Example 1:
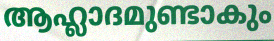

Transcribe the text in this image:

ആഹ്ലാദമുണ്ടാകും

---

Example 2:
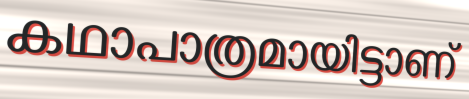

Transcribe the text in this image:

കഥാപാത്രമായിട്ടാണ്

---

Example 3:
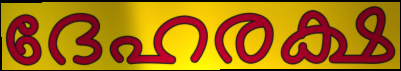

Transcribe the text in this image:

ദേഹരക്ഷ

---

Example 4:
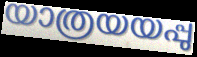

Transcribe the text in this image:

യാത്രയയപ്പു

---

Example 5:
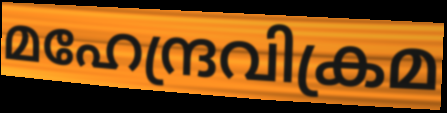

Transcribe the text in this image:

മഹേന്ദ്രവിക്രമ